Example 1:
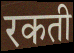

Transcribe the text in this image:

रकती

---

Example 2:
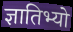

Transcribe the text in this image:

ज्ञातिभ्यो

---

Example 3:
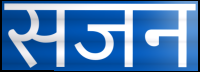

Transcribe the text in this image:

सजन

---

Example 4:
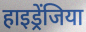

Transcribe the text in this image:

हाइड्रेंजिया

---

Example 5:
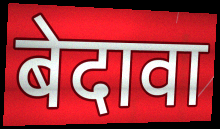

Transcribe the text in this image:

बेदावा